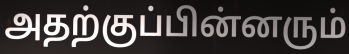
அதற்குப்பின்னரும்